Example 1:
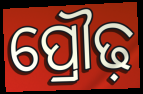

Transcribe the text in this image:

ପ୍ରୌଢ଼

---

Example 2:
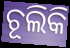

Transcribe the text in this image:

ଚୂଲିକି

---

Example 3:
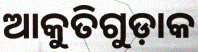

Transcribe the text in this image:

ଆକୁତିଗୁଡ଼ାକ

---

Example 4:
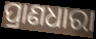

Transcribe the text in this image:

ପ୍ରାଣଧାରା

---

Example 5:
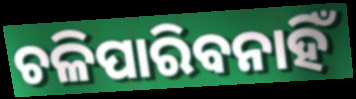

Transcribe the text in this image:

ଚଳିପାରିବନାହିଁ